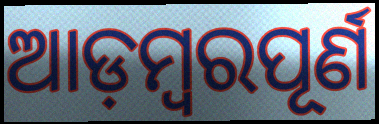
ଆଡ଼ମ୍ବରପୂର୍ଣ